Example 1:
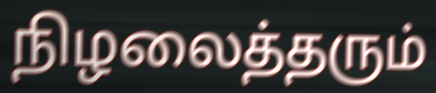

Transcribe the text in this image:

நிழலைத்தரும்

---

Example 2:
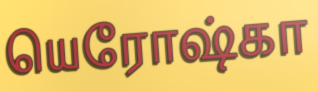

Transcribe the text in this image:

யெரோஷ்கா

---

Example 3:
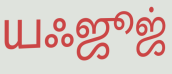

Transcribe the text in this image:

யஃஜூஜ்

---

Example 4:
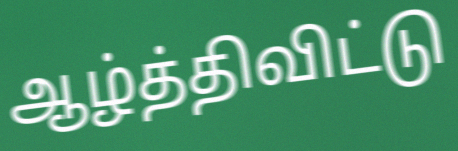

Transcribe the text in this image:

ஆழ்த்திவிட்டு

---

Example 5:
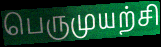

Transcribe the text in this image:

பெருமுயற்சி